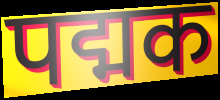
पद्मक